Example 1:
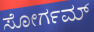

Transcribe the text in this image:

ಸೋರ್ಗಮ್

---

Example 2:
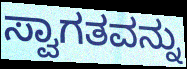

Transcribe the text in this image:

ಸ್ವಾಗತವನ್ನು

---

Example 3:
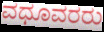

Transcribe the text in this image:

ವಧೂವರರು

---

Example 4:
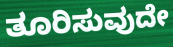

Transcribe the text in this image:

ತೂರಿಸುವುದೇ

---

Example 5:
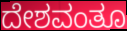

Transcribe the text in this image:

ದೇಶವಂತೂ